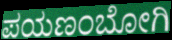
ಪಯಣಂಬೋಗಿ